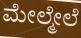
ಮೇಲ್ಮೇಲೆ